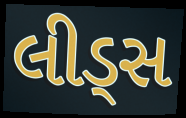
લીડ્સ